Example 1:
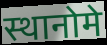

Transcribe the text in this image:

स्थानोमे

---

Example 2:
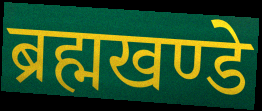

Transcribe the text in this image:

ब्रह्मखण्डे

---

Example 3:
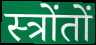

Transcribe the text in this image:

स्त्रोंतों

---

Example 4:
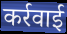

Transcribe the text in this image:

कर्रवाई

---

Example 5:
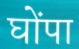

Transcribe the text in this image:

घोंपा